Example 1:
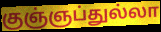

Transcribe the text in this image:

குஞ்ஞப்துல்லா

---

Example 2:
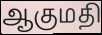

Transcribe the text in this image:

ஆகுமதி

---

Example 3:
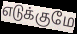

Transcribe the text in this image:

எடுக்குமே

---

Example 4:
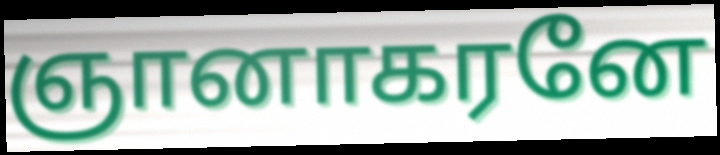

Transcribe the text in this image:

ஞானாகரனே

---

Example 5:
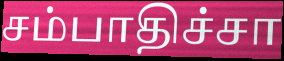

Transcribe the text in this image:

சம்பாதிச்சா